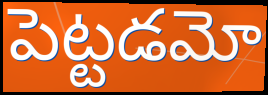
పెట్టడమో